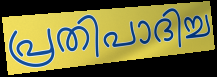
പ്രതിപാദിച്ച